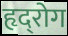
हृद्‍रोग